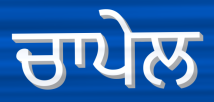
ਚਾਪੇਲ